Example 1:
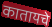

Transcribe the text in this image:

कातायचे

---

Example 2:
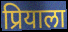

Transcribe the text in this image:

प्रियाला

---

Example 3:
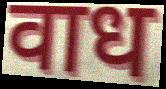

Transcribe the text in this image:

वाध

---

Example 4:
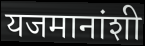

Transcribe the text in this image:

यजमानांशी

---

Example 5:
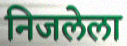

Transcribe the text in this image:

निजलेला